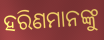
ହରିଣମାନଙ୍କୁ